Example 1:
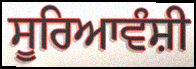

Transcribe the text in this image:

ਸੂਰਿਆਵੰਸ਼ੀ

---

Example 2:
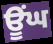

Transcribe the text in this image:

ਊਂਘ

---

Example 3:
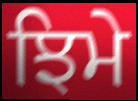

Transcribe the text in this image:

ਝਿਮੇ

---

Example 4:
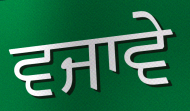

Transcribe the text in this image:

ਵਜਾਵੇ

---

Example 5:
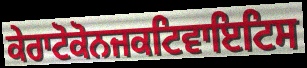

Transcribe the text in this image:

ਕੇਰਾਟੋਕੋਨਜਕਟਿਵਾਇਟਿਸ